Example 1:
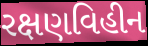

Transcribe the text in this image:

રક્ષણવિહીન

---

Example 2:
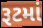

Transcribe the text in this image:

રૂટમાં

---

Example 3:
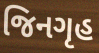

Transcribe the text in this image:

જિનગૃહ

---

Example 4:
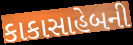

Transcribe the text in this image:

કાકાસાહેબની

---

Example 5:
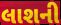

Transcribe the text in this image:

લાશની